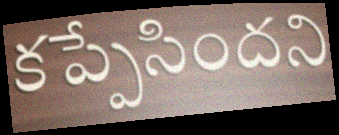
కప్పేసిందని